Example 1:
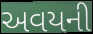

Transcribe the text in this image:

અવયની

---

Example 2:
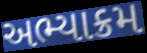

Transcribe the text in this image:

અભ્યાક્રમ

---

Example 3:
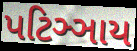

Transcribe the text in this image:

પટિઞ્ઞાય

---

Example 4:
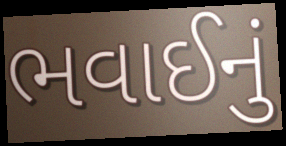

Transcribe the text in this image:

ભવાઈનું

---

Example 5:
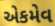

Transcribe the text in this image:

એકમેવ